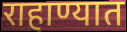
राहाण्यात